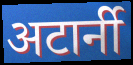
अटार्नी